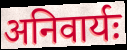
अनिवार्यः